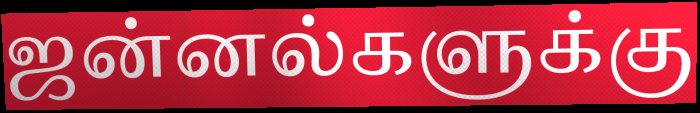
ஜன்னல்களுக்கு